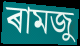
ৰামজু